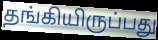
தங்கியிருப்பது